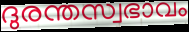
ദുരന്തസ്വഭാവം